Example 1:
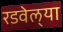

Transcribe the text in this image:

रडवेल्या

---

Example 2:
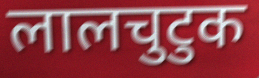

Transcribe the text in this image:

लालचुटुक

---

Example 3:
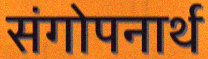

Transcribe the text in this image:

संगोपनार्थ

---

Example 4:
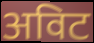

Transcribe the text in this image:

अविट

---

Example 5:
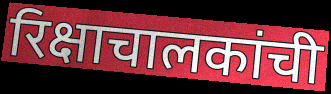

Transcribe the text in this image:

रिक्षाचालकांची